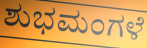
ಶುಭಮಂಗಳೆ